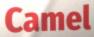
Camel